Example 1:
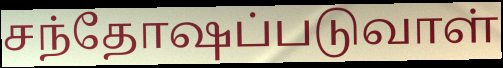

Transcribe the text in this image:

சந்தோஷப்படுவாள்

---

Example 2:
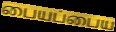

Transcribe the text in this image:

பையப்பைய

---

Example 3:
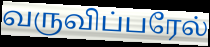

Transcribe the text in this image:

வருவிப்பரேல்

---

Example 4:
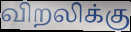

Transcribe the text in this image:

விறலிக்கு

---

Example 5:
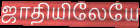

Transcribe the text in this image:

ஜாதியிலேயே